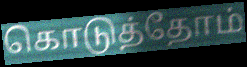
கொடுத்தோம்